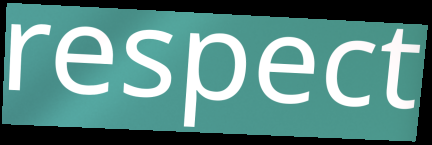
respect